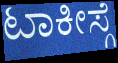
ಟಾಕೀಸ್ಗೆ